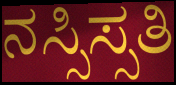
ನಸ್ಸಿಸ್ಸತಿ